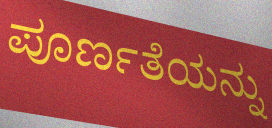
ಪೂರ್ಣತೆಯನ್ನು